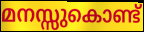
മനസ്സുകൊണ്ട്